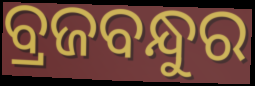
ବ୍ରଜବନ୍ଧୁର